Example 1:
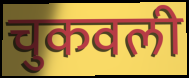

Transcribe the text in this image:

चुकवली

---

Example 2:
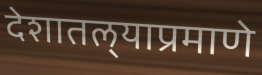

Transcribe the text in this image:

देशातल्याप्रमाणे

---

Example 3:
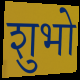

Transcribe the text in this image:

शुभो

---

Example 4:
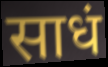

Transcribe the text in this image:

साधं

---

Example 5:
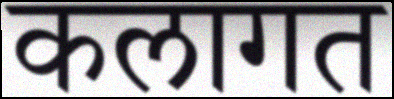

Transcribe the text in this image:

कलागत